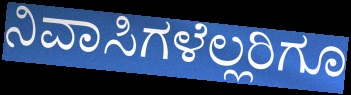
ನಿವಾಸಿಗಳೆಲ್ಲರಿಗೂ